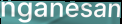
nganesan